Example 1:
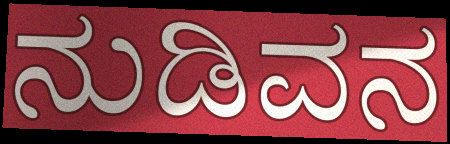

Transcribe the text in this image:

ನುಡಿವನ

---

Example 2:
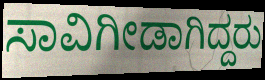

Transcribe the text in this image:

ಸಾವಿಗೀಡಾಗಿದ್ದರು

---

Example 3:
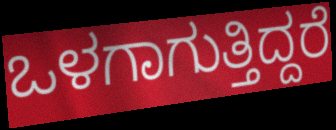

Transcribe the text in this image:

ಒಳಗಾಗುತ್ತಿದ್ದರೆ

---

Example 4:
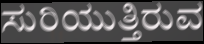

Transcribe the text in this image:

ಸುರಿಯುತ್ತಿರುವ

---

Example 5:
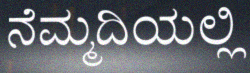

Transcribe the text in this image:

ನೆಮ್ಮದಿಯಲ್ಲಿ